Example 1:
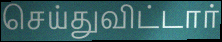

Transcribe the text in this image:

செய்துவிட்டார்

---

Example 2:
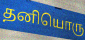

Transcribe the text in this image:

தனியொரு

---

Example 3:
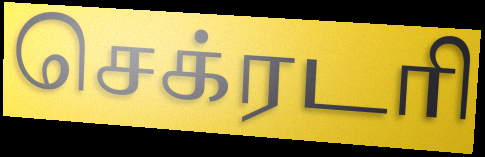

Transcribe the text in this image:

செக்ரடரி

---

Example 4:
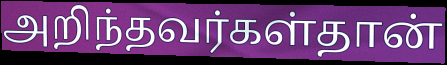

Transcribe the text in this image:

அறிந்தவர்கள்தான்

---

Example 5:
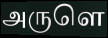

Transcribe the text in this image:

அருளெ